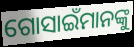
ଗୋସାଇଁମାନଙ୍କୁ